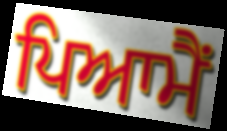
ਪਿਆਮੈਂ